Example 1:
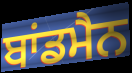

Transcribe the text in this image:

ਬਾਂਡਮੈਨ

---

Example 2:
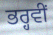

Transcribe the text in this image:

ਭਰ੍ਹਵੀਂ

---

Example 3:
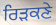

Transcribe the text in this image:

ਰਿੜਕਣੇ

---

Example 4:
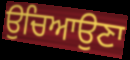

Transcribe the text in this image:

ਉਚਿਆਉਣਾ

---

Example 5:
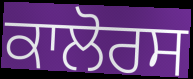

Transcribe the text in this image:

ਕਾਲੋਰਸ